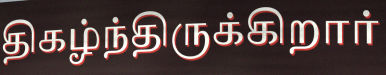
திகழ்ந்திருக்கிறார்